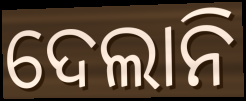
ଦେଲାନି